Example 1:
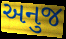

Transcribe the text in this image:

અનુજ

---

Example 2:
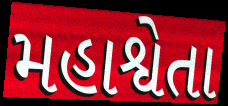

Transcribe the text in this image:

મહાશ્વેતા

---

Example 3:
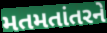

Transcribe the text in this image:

મતમતાંતરને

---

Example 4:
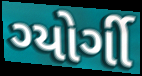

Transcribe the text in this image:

ગ્યોર્ગી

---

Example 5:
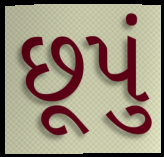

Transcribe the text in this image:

છૂપું